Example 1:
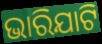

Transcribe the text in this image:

ଭାରିଯାଟି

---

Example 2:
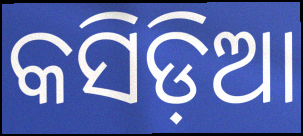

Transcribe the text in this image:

କସିଡ଼ିଆ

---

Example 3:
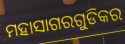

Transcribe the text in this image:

ମହାସାଗରଗୁଡିକର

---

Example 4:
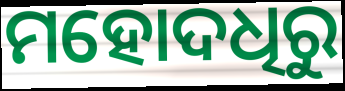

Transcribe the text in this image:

ମହୋଦଧିରୁ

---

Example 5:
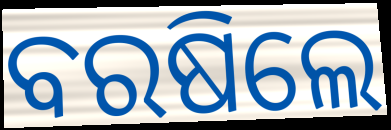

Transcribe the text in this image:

ବରଷିଲେ